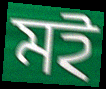
মই